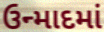
ઉન્માદમાં